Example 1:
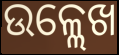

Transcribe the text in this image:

ଉଳ୍ଲେଖ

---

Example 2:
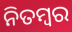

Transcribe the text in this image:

ନିତମ୍ୱର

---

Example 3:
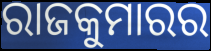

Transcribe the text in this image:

ରାଜକୁମାରର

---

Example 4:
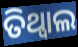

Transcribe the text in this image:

ତିଥ୍ୱାଲ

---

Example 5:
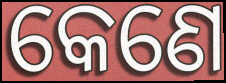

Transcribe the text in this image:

କେଣେ